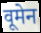
वूमेन